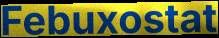
Febuxostat